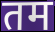
तम